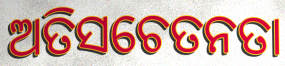
ଅତିସଚେତନତା